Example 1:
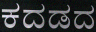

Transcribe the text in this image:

ಕದಡದ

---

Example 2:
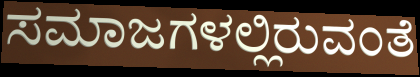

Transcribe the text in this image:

ಸಮಾಜಗಳಲ್ಲಿರುವಂತೆ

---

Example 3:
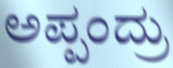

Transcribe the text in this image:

ಅಪ್ಪಂದ್ರು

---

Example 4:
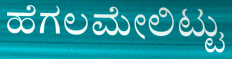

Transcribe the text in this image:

ಹೆಗಲಮೇಲಿಟ್ಟು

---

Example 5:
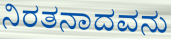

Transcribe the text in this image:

ನಿರತನಾದವನು